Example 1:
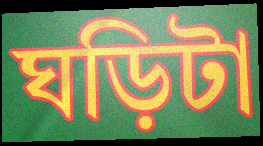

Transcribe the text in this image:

ঘড়িটা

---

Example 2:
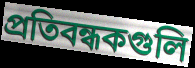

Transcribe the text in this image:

প্রতিবন্ধকগুলি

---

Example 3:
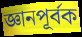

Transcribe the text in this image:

জ্ঞানপূর্বক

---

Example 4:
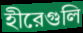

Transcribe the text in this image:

হীরেগুলি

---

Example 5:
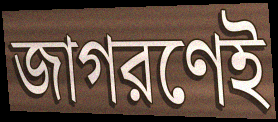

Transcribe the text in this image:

জাগরণেই